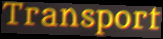
Transport